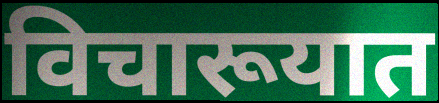
विचारूयात